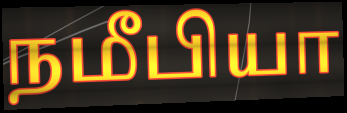
நமீபியா